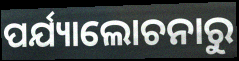
ପର୍ଯ୍ୟାଲୋଚନାରୁ